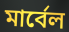
মার্বেল